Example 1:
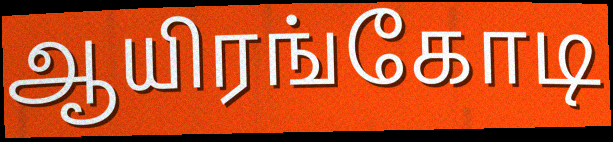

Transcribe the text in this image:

ஆயிரங்கோடி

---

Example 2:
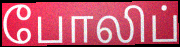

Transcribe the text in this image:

போலிப்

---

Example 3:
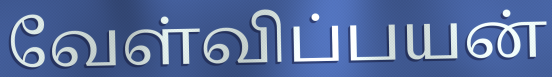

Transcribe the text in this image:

வேள்விப்பயன்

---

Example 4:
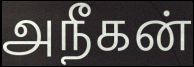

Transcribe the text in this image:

அநீகன்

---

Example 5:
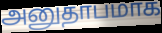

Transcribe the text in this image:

அனுதாபமாக